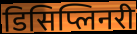
डिसिप्लिनरी